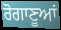
ਰੋਗਾਣੂਆਂ